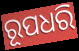
ରୂପଧରି